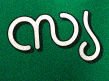
സ്യ